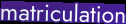
matriculation